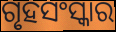
ଗୃହସଂସ୍କାର